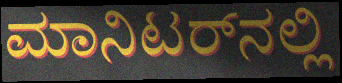
ಮಾನಿಟರ್‌ನಲ್ಲಿ